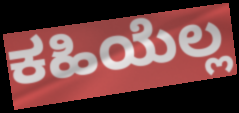
ಕಹಿಯೆಲ್ಲ